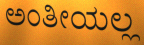
ಅಂತೀಯಲ್ಲ